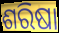
ଶରିଷା